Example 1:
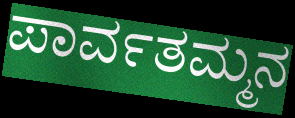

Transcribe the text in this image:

ಪಾರ್ವತಮ್ಮನ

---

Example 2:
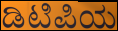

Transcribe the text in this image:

ಡಿಟಿಪಿಯ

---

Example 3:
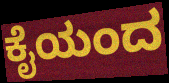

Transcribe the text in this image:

ಕೈಯಂದ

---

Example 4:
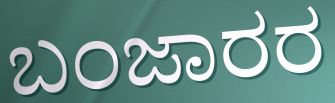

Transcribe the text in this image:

ಬಂಜಾರರ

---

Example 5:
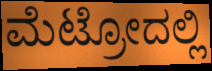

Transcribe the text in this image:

ಮೆಟ್ರೋದಲ್ಲಿ